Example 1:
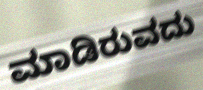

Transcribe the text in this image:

ಮಾಡಿರುವದು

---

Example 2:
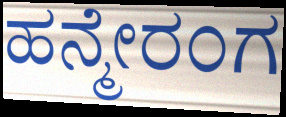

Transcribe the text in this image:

ಹನ್ಮೇರಂಗ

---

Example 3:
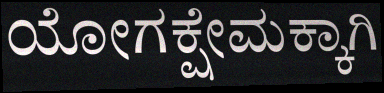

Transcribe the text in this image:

ಯೋಗಕ್ಷೇಮಕ್ಕಾಗಿ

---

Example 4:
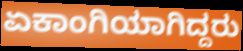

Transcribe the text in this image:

ಏಕಾಂಗಿಯಾಗಿದ್ದರು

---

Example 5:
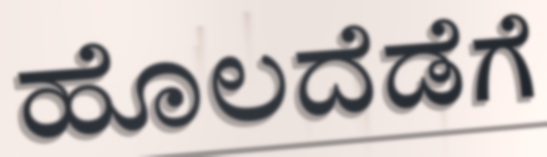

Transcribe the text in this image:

ಹೊಲದೆಡೆಗೆ